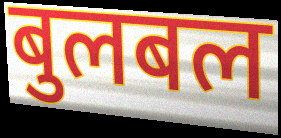
बुलबल